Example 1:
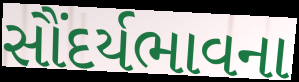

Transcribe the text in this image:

સૌંદર્યભાવના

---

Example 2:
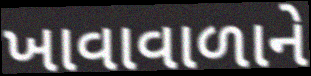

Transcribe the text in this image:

ખાવાવાળાને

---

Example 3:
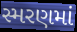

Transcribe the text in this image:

સ્મરણમાં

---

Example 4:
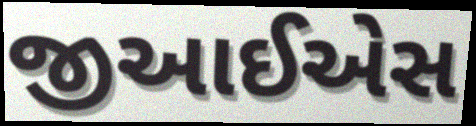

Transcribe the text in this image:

જીઆઈએસ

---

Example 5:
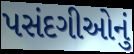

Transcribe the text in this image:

પસંદગીઓનું